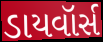
ડાયવૉર્સ